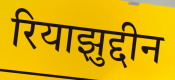
रियाझुद्दीन